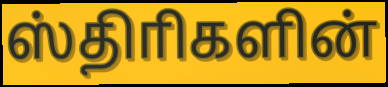
ஸ்திரிகளின்